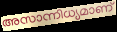
അസാന്നിധ്യമാണ്